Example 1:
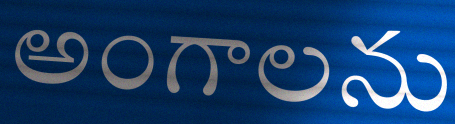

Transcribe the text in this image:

అంగాలను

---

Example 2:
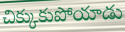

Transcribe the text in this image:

చిక్కుకుపోయాడు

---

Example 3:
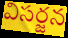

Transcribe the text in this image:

విసర్జన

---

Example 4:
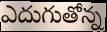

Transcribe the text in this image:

ఎదుగుతోన్న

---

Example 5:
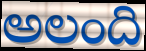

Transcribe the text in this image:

అలంది